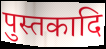
पुस्तकादि